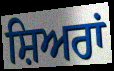
ਸ਼ਿਅਰਾਂ